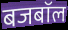
बजबॉल